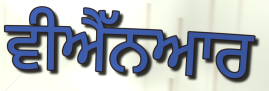
ਵੀਐੱਨਆਰ